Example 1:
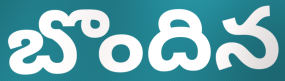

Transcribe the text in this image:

బొందిన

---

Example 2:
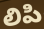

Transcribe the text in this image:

లిపి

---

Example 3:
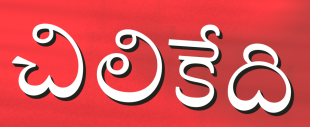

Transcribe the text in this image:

చిలికేది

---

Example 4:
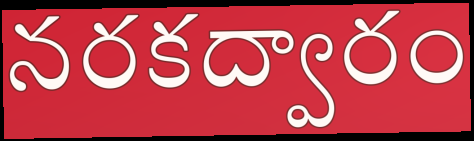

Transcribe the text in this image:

నరకద్వారం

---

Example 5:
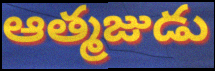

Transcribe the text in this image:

ఆత్మజుడు